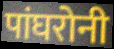
पांघरोनी